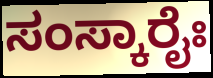
ಸಂಸ್ಕಾರೈಃ